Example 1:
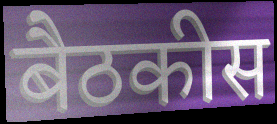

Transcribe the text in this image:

बैठकीस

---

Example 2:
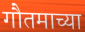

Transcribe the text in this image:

गौतमाच्या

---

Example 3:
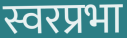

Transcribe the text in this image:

स्वरप्रभा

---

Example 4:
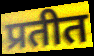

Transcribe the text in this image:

प्रतीत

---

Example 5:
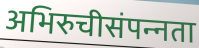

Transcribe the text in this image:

अभिरुचीसंपन्नता